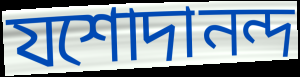
যশোদানন্দ